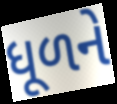
ધૂળને